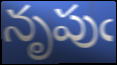
నృపుఁ